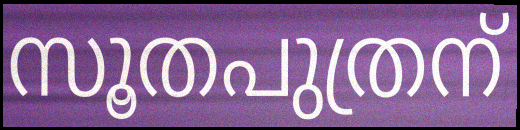
സൂതപുത്രന്